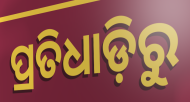
ପ୍ରତିଧାଡ଼ିରୁ